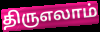
திருஎலாம்